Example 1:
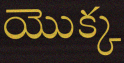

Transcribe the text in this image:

యొక్క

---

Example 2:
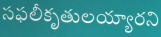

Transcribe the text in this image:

సఫలీకృతులయ్యారని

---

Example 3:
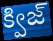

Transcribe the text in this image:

క్విజ్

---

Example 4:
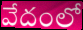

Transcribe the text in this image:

వేదంలో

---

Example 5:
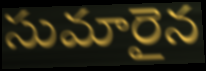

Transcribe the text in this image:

సుమారైన